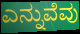
ಎನ್ನುವೆವು